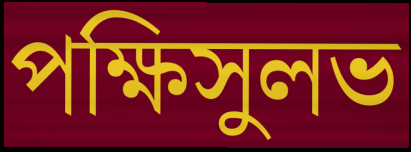
পক্ষিসুলভ